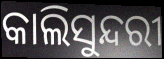
କାଲିସୁନ୍ଦରୀ